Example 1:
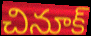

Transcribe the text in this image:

చినూక్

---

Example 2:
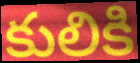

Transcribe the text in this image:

కులికి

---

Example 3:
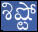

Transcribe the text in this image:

శిష్టో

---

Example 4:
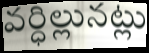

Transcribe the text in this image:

వర్ధిల్లునట్లు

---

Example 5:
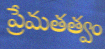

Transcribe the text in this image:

ప్రేమతత్వం